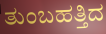
ತುಂಬಹತ್ತಿದ